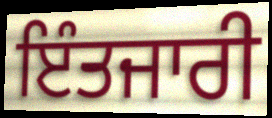
ਇੰਤਜਾਰੀ